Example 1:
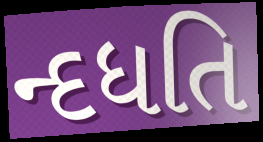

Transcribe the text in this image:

ન્દધતિ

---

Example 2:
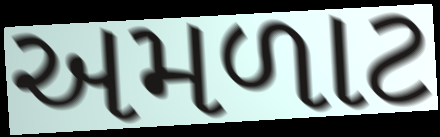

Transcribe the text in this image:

અમળાટ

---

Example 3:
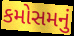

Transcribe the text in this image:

કમોસમનું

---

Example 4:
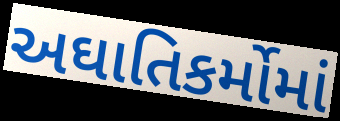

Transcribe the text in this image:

અઘાતિકર્મોમાં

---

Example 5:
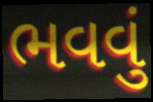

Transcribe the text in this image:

ભવવું